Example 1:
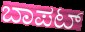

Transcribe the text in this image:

ಬಾಪಟ್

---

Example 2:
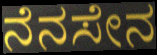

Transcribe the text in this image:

ನೆನಸೇನ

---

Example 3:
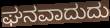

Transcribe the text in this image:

ಘನವಾದುದು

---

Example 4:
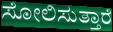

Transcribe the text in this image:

ಸೋಲಿಸುತ್ತಾರೆ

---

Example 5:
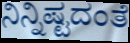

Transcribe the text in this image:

ನಿನ್ನಿಷ್ಟದಂತೆ